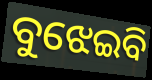
ବୁଝେଇବି